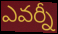
ఎవర్నీ